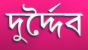
দুর্দ্দৈব